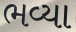
ભવ્યા